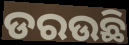
ଡରଉଛି